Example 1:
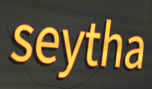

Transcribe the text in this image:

seytha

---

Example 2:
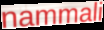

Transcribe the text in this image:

nammali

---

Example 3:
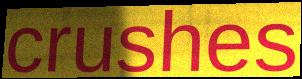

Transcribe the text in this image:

crushes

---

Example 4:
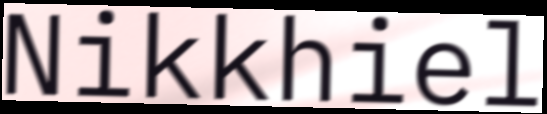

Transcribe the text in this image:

Nikkhiel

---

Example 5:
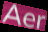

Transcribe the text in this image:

Aer